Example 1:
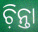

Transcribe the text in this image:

ଚ଼ିନ୍ତା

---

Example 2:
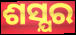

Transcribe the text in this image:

ଶସ୍ଯର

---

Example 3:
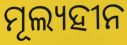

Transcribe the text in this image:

ମୂଲ୍ଯହୀନ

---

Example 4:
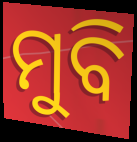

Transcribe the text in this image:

ମୁବି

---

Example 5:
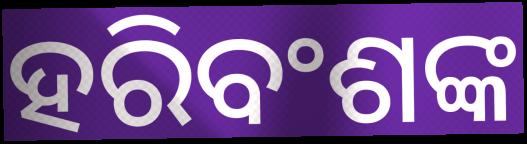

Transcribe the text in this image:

ହରିବଂଶଙ୍କ